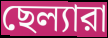
ছেল্যারা